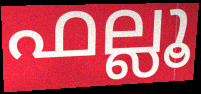
ഫല്ലൂ